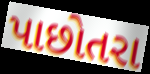
પાછોતરા